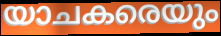
യാചകരെയും